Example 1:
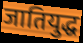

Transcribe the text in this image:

जातियुद्ध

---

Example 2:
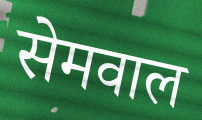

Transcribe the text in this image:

सेमवाल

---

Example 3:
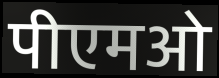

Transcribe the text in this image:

पीएमओ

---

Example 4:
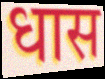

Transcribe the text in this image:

धास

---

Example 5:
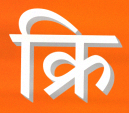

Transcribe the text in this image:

क्रि